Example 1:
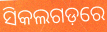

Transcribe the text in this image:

ସିକଲଗଡ଼ରେ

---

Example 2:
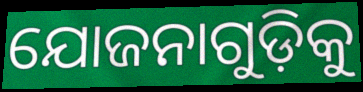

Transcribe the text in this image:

ଯୋଜନାଗୁଡ଼ିକୁ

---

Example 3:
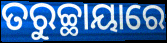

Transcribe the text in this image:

ତରୁଚ୍ଛାୟାରେ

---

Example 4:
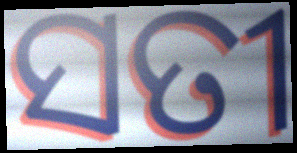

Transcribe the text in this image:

ସତୀ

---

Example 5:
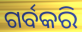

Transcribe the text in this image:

ଗର୍ବକରି